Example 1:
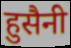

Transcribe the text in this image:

हुसैनी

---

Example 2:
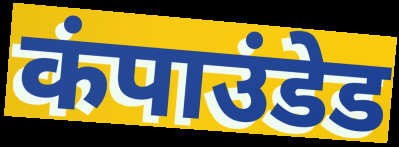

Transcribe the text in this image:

कंपाउंडेड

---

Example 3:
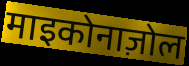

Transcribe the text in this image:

माइकोनाज़ोल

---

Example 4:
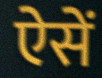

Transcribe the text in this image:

ऐसें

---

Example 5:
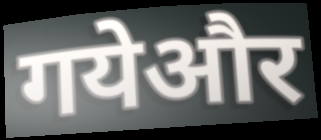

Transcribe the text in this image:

गयेऔर